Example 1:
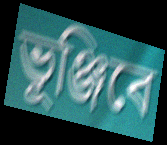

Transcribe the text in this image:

ভূঞ্জিবে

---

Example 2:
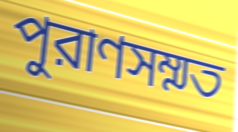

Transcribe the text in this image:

পুরাণসম্মত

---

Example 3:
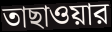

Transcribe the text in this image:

তাছাওয়ার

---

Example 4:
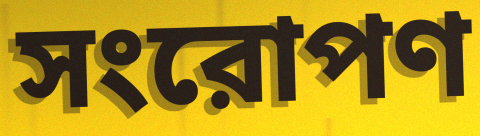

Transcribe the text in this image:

সংরোপণ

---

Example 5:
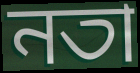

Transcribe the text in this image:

নতা